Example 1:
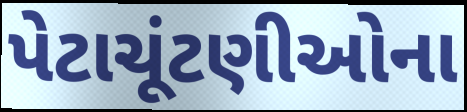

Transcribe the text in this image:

પેટાચૂંટણીઓના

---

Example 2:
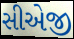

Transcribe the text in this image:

સીએજી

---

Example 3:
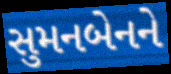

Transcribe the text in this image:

સુમનબેનને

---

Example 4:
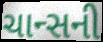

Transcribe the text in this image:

ચાન્સની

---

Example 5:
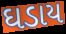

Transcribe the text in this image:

ઘડાય